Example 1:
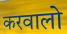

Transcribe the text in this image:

करवालो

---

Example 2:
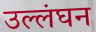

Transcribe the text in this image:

उल्लंघन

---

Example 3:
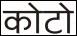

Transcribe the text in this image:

कोटो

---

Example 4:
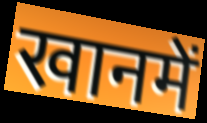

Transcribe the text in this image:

खानमें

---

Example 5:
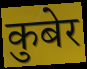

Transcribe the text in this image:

कुबेर